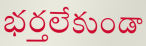
భర్తలేకుండా